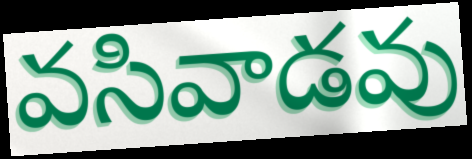
వసివాడవు